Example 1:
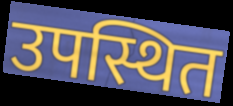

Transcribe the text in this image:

उपस्थित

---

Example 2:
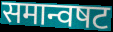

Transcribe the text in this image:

समान्वषट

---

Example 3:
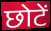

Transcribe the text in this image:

छोटें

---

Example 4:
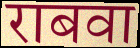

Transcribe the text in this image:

राबवा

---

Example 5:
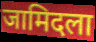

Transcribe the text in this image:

जामिदला